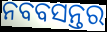
ନବବସନ୍ତର